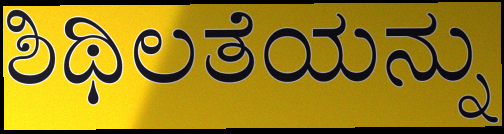
ಶಿಥಿಲತೆಯನ್ನು